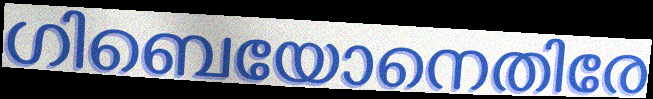
ഗിബെയോനെതിരേ